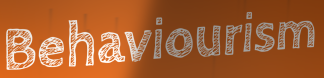
Behaviourism